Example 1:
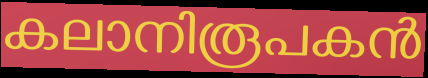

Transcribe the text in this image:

കലാനിരൂപകൻ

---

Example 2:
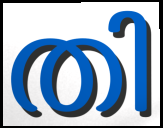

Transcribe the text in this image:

തി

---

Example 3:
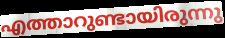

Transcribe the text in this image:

എത്താറുണ്ടായിരുന്നു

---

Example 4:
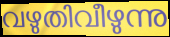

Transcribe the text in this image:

വഴുതിവീഴുന്നു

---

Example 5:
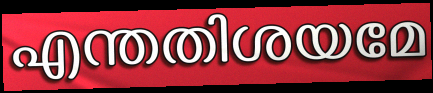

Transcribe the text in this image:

എന്തതിശയമേ